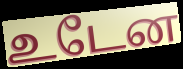
உடேன